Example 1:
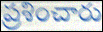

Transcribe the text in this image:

ప్రశించారు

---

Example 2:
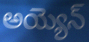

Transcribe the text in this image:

అయ్యెన్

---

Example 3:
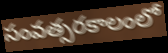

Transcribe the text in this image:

సంవత్సరకాలంలో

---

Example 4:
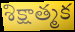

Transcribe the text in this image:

శిక్షాత్మక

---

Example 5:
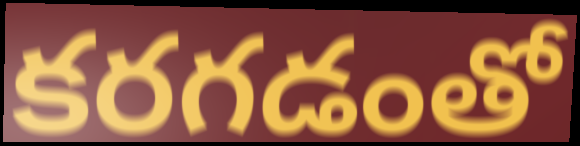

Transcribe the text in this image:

కరగడంతో